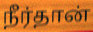
நீர்தான்